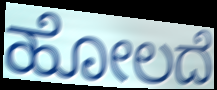
ಹೋಲದೆ